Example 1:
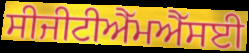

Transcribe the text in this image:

ਸੀਜੀਟੀਐੱਮਐੱਸਈ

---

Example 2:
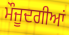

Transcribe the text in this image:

ਮੌਜੂਦਗੀਆਂ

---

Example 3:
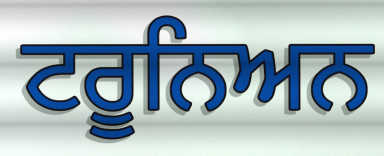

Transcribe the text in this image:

ਟਰੂਨਿਅਨ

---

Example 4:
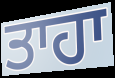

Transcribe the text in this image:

ਤਾਹਾ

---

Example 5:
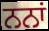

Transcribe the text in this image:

ਨਨਾਂ